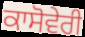
ਕਾਸੋਵੇਰੀ